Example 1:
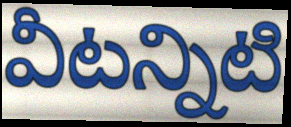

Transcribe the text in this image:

వీటన్నిటి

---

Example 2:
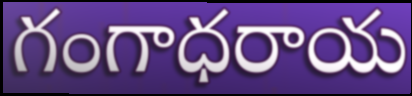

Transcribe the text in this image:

గంగాధరాయ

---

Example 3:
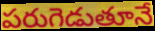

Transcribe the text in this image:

పరుగెడుతూనే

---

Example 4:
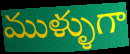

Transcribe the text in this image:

ముళ్ళుగా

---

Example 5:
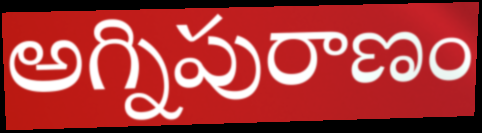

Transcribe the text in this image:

అగ్నిపురాణం